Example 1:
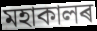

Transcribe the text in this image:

মহাকালৰ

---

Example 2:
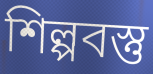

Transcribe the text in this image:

শিল্পবস্তু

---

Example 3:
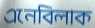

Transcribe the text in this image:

এনেবিলাক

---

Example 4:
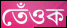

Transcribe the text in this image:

তেঁওক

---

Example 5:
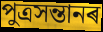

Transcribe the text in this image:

পুত্ৰসন্তানৰ